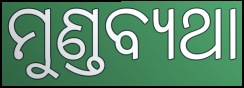
ମୁଣ୍ଡବ୍ୟଥା